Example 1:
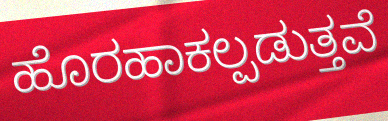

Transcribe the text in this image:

ಹೊರಹಾಕಲ್ಪಡುತ್ತವೆ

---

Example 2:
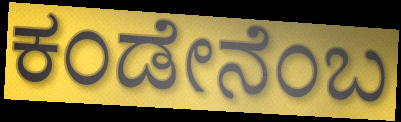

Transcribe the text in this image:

ಕಂಡೇನೆಂಬ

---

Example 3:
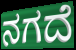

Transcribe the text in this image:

ನಗದೆ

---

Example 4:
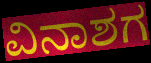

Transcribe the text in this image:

ವಿನಾಶಗ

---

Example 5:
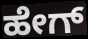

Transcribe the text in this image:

ಹೇಗ್